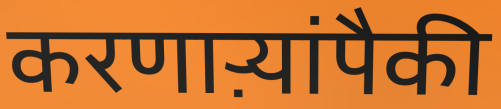
करणाऱ्‍यांपैकी